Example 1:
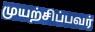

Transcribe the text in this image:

முயற்சிப்பவர்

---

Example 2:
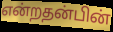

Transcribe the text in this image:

என்றதன்பின்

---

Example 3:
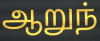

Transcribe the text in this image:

ஆறுந்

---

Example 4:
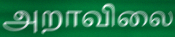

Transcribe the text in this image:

அறாவிலை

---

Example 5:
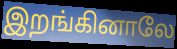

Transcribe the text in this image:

இறங்கினாலே